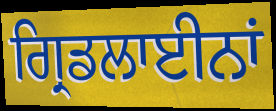
ਗ੍ਰਿਡਲਾਈਨਾਂ